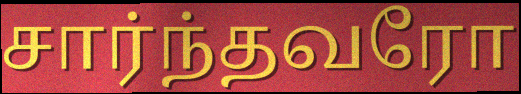
சார்ந்தவரோ